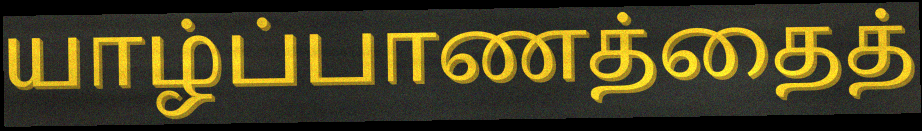
யாழ்ப்பாணத்தைத்